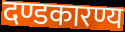
दण्डकारण्य